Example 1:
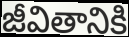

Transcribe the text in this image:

జీవితానికి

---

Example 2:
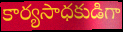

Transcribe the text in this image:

కార్యసాధకుడిగా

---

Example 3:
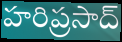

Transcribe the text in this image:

హరిప్రసాద్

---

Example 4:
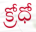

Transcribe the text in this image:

క్రోధో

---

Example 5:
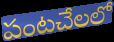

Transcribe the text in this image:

పంటచేలలో